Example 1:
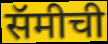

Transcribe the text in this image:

सॅमीची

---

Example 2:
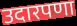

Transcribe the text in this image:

उदारपणा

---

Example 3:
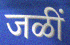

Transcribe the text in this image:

जळीं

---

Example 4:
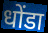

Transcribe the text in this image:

धोंडा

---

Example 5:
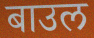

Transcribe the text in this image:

बाउल